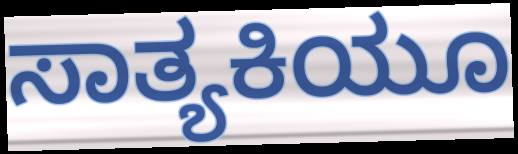
ಸಾತ್ಯಕಿಯೂ